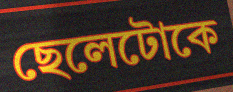
ছেলেটোকে